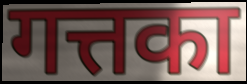
गत्तका